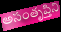
అసంతృప్తిని